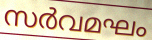
സർവമഘം